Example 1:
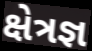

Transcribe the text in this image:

ક્ષેત્રજ્ઞ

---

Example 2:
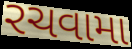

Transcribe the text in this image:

રચવામા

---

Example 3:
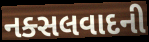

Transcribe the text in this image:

નક્સલવાદની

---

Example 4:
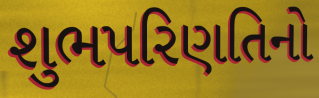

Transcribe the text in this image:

શુભપરિણતિનો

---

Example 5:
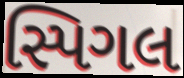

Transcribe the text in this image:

સ્પિગલ